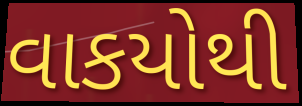
વાકયોથી